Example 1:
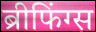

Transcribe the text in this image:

ब्रीफिंग्स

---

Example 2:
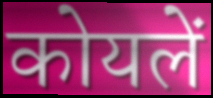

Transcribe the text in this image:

कोयलें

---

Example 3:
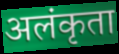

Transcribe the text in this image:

अलंकृता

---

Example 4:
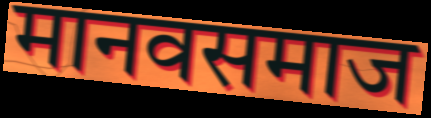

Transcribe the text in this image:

मानवसमाज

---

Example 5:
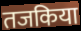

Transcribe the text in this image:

तजकिया